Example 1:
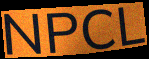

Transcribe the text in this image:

NPCL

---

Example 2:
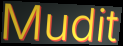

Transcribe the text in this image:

Mudit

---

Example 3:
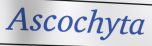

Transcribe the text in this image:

Ascochyta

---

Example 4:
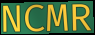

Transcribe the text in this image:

NCMR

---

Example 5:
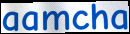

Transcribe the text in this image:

aamcha